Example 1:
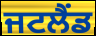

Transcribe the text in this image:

ਜਟਲੈਂਡ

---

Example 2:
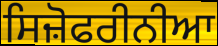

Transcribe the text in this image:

ਸਿਜ਼ੋਫਰੀਨੀਆ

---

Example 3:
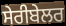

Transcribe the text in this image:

ਸੇਰੀਬੇਲਰ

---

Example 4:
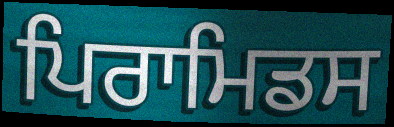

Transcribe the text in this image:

ਪਿਰਾਮਿਡਸ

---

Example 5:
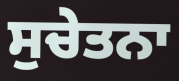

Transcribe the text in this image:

ਸੁਚੇਤਨਾ